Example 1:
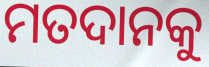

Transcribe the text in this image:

ମତଦାନକୁ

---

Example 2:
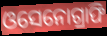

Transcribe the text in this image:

ଓସେନୋଗ୍ରାଫି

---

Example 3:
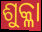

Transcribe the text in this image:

ଶୁକ୍ଳା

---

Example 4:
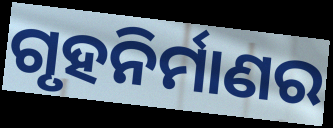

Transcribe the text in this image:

ଗୃହନିର୍ମାଣର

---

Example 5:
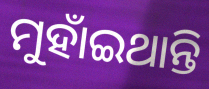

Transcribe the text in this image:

ମୁହାଁଇଥାନ୍ତି